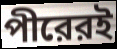
পীরেরই